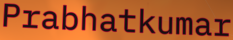
Prabhatkumar